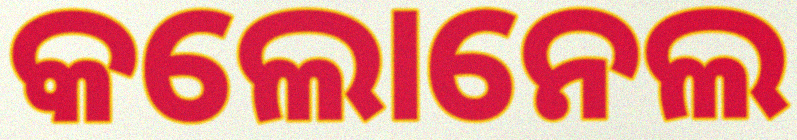
କଲୋନେଲ